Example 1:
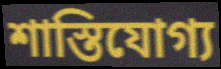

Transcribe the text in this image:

শাস্তিযোগ্য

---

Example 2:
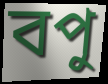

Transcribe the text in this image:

বপু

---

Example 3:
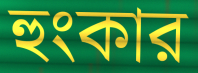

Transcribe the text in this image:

হুংকার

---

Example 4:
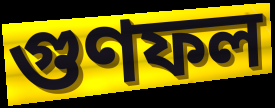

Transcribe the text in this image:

গুণফল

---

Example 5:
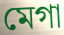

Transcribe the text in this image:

মেগা